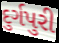
દુર્ગપુરી